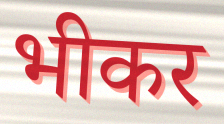
भीकर